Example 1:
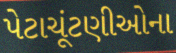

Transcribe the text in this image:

પેટાચૂંટણીઓના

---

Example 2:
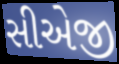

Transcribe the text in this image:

સીએજી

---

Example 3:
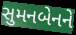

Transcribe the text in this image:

સુમનબેનને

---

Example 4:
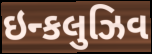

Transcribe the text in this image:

ઇન્કલુઝિવ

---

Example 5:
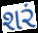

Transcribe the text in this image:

શરં